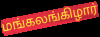
மங்கலங்கிழார்